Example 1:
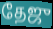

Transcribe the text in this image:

தேஜு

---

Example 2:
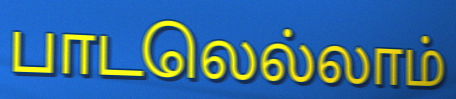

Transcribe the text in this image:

பாடலெல்லாம்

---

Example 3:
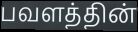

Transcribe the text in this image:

பவளத்தின்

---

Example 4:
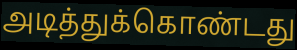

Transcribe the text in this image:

அடித்துக்கொண்டது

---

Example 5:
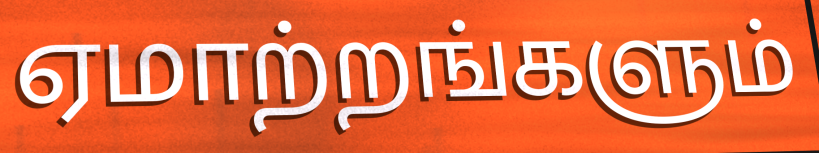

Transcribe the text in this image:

ஏமாற்றங்களும்